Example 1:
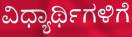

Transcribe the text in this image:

ವಿಧ್ಯಾರ್ಥಿಗಳಿಗೆ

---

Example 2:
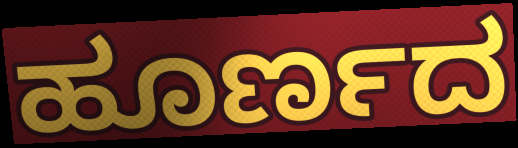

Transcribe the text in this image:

ಹೂರ್ಣದ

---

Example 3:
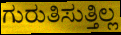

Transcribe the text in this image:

ಗುರುತಿಸುತ್ತಿಲ್ಲ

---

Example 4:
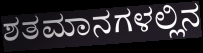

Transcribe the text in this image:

ಶತಮಾನಗಳಲ್ಲಿನ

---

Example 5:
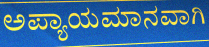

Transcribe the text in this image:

ಅಪ್ಯಾಯಮಾನವಾಗಿ